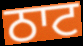
ਠਾਟ